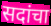
सदांचा